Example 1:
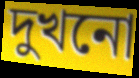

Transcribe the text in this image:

দুখনো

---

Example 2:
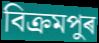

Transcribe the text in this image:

বিক্ৰমপুৰ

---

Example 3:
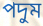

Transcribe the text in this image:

পদুম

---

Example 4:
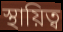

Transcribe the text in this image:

স্থায়িত্ব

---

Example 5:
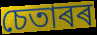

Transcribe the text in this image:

চেতাৰৰ